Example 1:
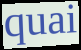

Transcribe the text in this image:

quai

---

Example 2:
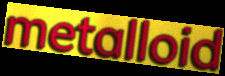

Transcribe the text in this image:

metalloid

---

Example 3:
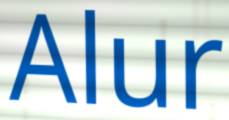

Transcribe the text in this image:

Alur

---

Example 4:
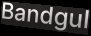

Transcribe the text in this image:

Bandgul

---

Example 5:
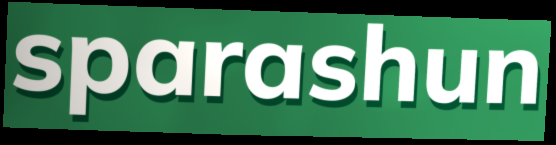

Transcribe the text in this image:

sparashun